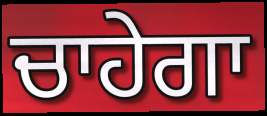
ਚਾਹੇਗਾ